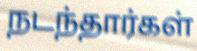
நடந்தார்கள்